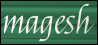
magesh